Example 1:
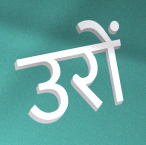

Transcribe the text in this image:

उरों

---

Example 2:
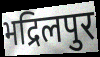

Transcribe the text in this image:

भद्रिलपुर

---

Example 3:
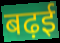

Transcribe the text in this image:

बढ़ई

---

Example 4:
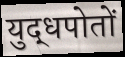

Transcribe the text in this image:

युद्धपोतों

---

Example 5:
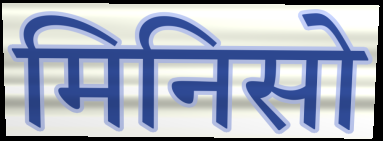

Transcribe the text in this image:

मिनिसो